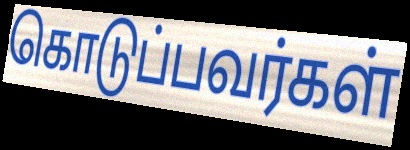
கொடுப்பவர்கள்